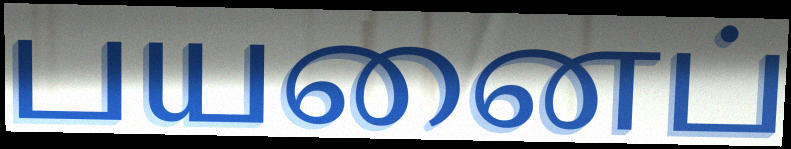
பயனைப்